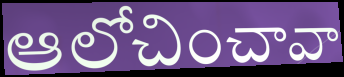
ఆలోచించావా